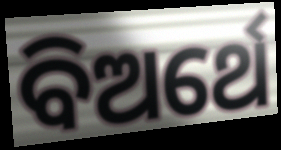
ବିଅର୍ଥେ